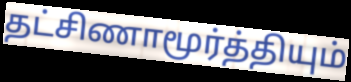
தட்சிணாமூர்த்தியும்